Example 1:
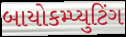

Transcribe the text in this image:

બાયોકમ્પ્યુટિંગ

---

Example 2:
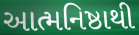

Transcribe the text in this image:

આત્મનિષ્ઠાથી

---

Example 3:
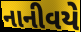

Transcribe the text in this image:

નાનીવયે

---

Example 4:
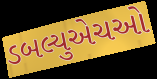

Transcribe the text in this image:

ડબલ્યુએચઓ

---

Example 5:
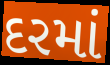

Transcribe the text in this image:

દરમાં